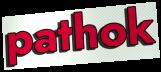
pathok